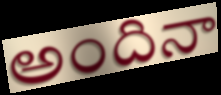
అందినా